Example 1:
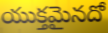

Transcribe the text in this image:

యుక్తమైనదో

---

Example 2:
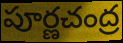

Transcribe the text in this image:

పూర్ణచంద్ర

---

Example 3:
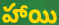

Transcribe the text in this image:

హాయి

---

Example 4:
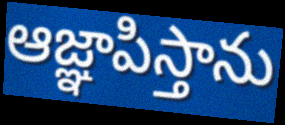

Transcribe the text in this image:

ఆజ్ఞాపిస్తాను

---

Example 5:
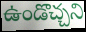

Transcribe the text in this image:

ఉండొచ్చని